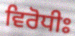
ਵਿਰੋਧੀਃ